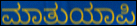
ಮಾತುಯಾಪಿ